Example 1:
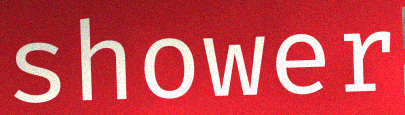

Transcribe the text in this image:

shower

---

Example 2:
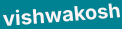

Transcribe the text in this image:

vishwakosh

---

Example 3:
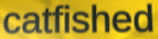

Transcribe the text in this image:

catfished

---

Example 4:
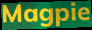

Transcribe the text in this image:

Magpie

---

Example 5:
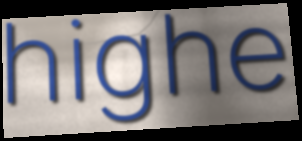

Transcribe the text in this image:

highe